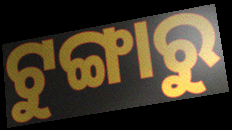
ଟୁଙ୍ଗାରୁ